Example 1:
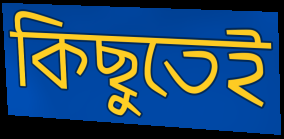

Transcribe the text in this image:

কিছুতেই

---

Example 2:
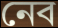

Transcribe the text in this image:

নেব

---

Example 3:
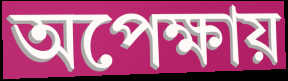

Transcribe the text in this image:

অপেক্ষায়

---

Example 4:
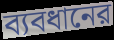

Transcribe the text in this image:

ব্যবধানের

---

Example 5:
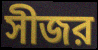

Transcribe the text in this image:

সীজর